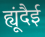
ह्यूंदैई